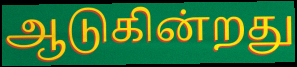
ஆடுகின்றது